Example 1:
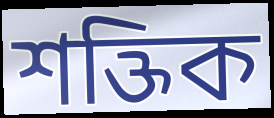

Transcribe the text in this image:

শক্তিক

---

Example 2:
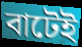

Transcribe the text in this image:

বাটেই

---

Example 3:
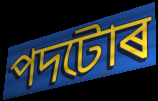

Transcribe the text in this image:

পদটোৰ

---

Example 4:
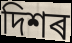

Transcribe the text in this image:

দিশৰ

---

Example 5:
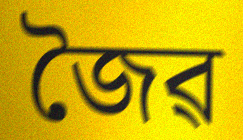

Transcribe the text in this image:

জৈৱ